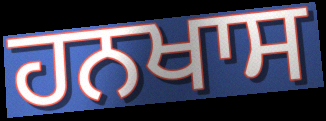
ਹਨਖਾਸ